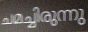
ചമച്ചിരുന്നു